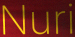
Nuri